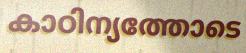
കാഠിന്യത്തോടെ